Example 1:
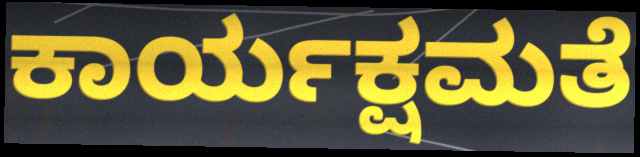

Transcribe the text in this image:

ಕಾರ್ಯಕ್ಷಮತೆ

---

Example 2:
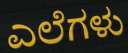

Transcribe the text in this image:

ಎಲೆಗಳು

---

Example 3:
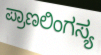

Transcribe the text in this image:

ಪ್ರಾಣಲಿಂಗಸ್ಯ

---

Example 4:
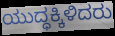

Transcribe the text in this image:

ಯುದ್ಧಕ್ಕಿಳಿದರು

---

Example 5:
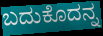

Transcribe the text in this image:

ಬದುಕೊದನ್ನ